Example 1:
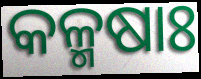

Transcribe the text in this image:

କଳ୍ମଷାଃ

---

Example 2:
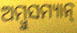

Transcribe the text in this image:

ଅମ୍ବୁସମ୍ୟାନ୍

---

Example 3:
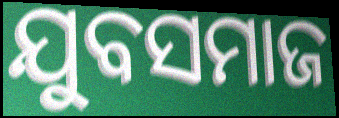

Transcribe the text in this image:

ଯୁବସମାଜ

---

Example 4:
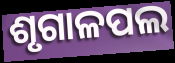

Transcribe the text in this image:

ଶୃଗାଳପଲ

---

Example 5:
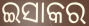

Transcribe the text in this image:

ଇସାକର